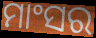
ମାଂସର